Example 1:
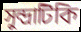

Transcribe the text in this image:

সুন্দ্রাটিকি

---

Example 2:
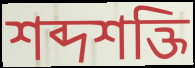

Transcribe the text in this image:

শব্দশক্তি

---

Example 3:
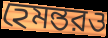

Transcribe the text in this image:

হেমন্তরও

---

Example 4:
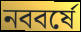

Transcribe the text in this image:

নববর্ষে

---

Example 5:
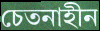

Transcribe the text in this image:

চেতনাহীন